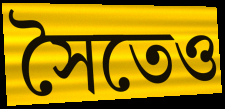
সৈতেও